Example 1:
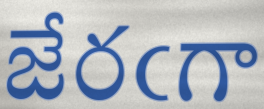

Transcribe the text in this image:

జేరఁగా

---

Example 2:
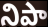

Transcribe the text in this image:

నిపా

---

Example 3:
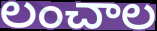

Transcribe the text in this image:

లంచాల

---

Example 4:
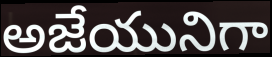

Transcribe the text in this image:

అజేయునిగా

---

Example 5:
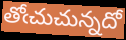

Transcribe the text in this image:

తోఁచుచున్నదో